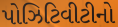
પોઝિટિવીટીનો